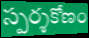
స్పర్శకోణం